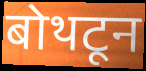
बोथटून